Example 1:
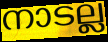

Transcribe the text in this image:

നാടല്ല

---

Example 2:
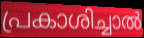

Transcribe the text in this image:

പ്രകാശിച്ചാൽ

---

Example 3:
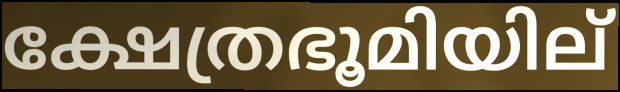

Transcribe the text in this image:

ക്ഷേത്രഭൂമിയില്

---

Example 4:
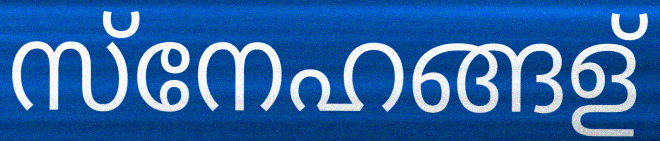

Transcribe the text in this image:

സ്നേഹങ്ങള്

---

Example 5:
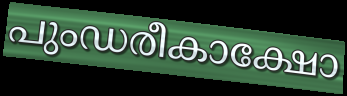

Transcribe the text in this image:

പുംഡരീകാക്ഷോ